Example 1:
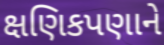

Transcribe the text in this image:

ક્ષણિકપણાને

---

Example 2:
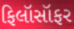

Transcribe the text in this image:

ફિલૉસૉફર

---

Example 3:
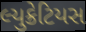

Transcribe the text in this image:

લ્યુક્રેટિયસ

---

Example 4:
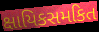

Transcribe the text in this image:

ક્ષાયિકસમકિત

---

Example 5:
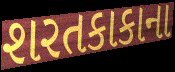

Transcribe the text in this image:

શરતકાકાના